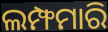
ଲମ୍ଫମାରି